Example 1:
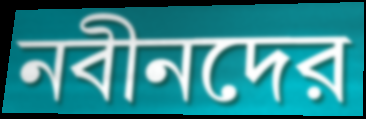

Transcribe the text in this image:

নবীনদের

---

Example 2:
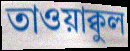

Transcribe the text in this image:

তাওয়াক্বুল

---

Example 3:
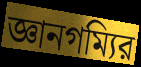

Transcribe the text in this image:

জ্ঞানগম্যির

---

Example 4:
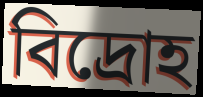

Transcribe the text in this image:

বিদ্রোহ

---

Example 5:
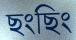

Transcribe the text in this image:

ছংছিং